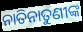
ନାତିନାତୁଣୀଙ୍କ